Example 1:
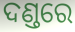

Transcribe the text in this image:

ଦଣ୍ଡରେ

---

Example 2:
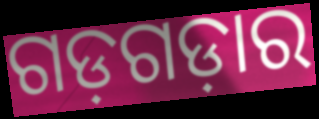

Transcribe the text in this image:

ଗଡ଼ଗଡ଼ାର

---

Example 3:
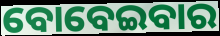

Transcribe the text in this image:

ବୋବେଇବାର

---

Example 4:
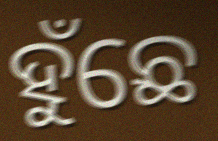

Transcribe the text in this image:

ହୁଁଛେ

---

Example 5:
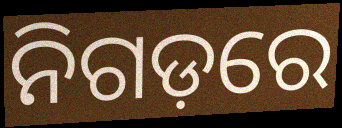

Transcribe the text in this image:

ନିଗଡ଼ରେ